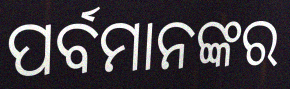
ପର୍ବମାନଙ୍କର